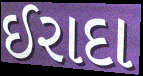
ઈરાદા